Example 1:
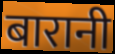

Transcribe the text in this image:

बारानी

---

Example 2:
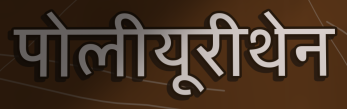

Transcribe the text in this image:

पोलीयूरीथेन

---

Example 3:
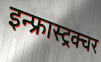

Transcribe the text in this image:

इन्फ्रास्ट्रक्चर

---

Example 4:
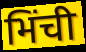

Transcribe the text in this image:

भिंची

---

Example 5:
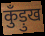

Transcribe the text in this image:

कुँड़ुख